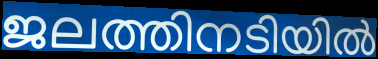
ജലത്തിനടിയിൽ